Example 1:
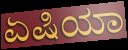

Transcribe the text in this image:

ಏಷಿಯಾ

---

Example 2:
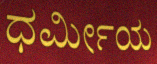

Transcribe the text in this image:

ಧರ್ಮೀಯ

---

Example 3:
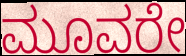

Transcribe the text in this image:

ಮೂವರೇ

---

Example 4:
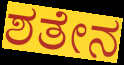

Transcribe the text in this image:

ಶತೇನ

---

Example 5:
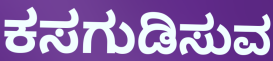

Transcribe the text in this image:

ಕಸಗುಡಿಸುವ